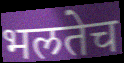
भलतेच